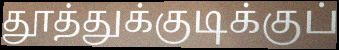
தூத்துக்குடிக்குப்